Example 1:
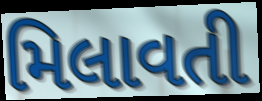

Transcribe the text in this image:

મિલાવતી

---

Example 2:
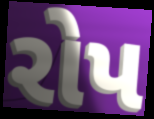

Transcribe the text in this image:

રોપ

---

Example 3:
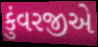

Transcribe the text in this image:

કુંવરજીએ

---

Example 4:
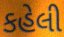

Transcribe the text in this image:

કહેલી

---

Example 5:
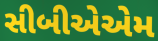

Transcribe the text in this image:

સીબીએએમ